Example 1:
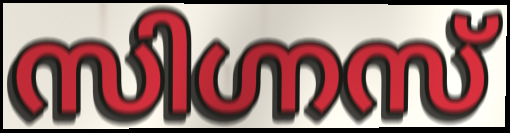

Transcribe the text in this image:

സിഗ്നസ്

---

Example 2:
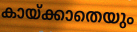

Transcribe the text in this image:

കായ്ക്കാതെയും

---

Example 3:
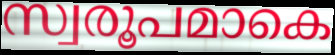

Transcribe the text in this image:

സ്വരൂപമാകെ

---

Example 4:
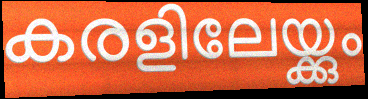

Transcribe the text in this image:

കരളിലേയ്ക്കും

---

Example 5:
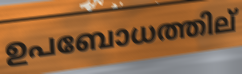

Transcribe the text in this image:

ഉപബോധത്തില്